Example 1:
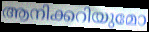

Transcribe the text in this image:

ആനിക്കറിയുമോ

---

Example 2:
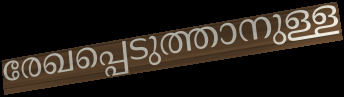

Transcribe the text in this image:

രേഖപ്പെടുത്താനുള്ള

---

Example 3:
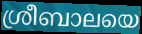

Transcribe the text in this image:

ശ്രീബാലയെ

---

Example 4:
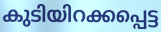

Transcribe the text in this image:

കുടിയിറക്കപ്പെട്ട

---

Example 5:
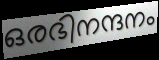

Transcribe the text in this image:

ഒരഭിനന്ദനം